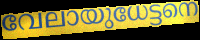
വേലായുധേട്ടനെ